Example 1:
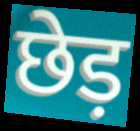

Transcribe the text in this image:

छेड़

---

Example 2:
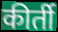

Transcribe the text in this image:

कीर्ती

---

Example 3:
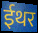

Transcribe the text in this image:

ईथर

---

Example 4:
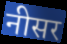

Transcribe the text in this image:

नीसर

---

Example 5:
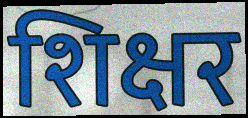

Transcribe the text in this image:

शिक्षर